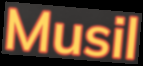
Musil